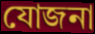
যোজনা